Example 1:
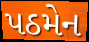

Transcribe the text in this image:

પઠમેન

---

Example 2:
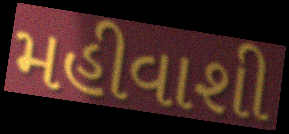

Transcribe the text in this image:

મહીવાશી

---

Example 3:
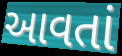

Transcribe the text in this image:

આવતાં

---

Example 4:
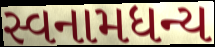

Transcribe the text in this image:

સ્વનામધન્ય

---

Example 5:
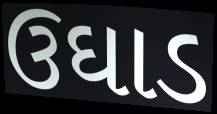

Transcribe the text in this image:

ઉઘાડ